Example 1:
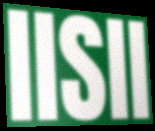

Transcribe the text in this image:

IISII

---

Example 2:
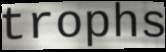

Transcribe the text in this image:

trophs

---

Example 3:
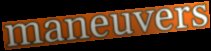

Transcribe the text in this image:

maneuvers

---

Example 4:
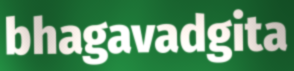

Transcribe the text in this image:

bhagavadgita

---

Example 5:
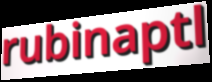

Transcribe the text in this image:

rubinaptl